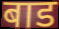
बाड